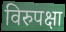
विरुपक्षा